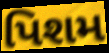
પિશમ